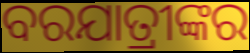
ବରଯାତ୍ରୀଙ୍କର